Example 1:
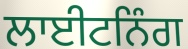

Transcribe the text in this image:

ਲਾਈਟਨਿੰਗ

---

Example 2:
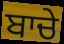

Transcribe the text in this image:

ਬਾਚੇ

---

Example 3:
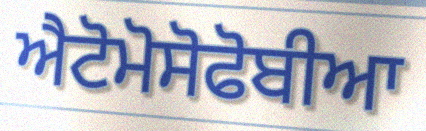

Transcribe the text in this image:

ਐਟੋਮੋਸੋਫੋਬੀਆ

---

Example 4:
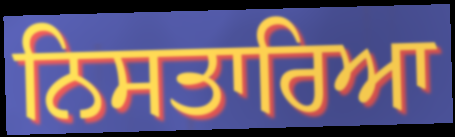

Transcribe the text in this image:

ਨਿਸਤਾਰਿਆ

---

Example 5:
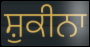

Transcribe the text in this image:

ਸ਼ੁਕੀਨਾ